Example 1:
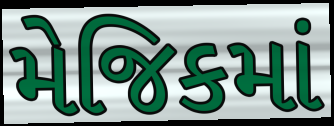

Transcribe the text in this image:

મેજિકમાં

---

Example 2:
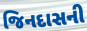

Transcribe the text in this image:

જિનદાસની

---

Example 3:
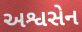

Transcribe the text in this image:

અશ્વસેન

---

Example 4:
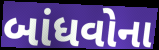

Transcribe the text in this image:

બાંધવોના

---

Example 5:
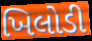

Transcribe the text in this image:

ખિલોડી